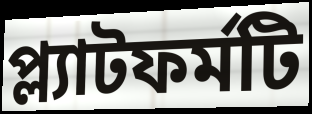
প্ল্যাটফর্মটি